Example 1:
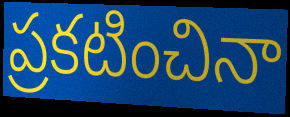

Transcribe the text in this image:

ప్రకటించినా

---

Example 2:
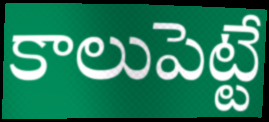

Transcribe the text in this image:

కాలుపెట్టే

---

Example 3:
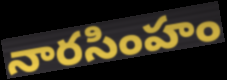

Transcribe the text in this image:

నారసింహం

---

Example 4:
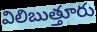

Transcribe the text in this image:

విలిబుత్తూరు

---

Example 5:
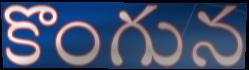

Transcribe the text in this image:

కొంగున